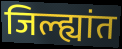
जिल्ह्यांत